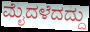
ಮೈದಳೆದದ್ದು